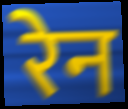
रेन